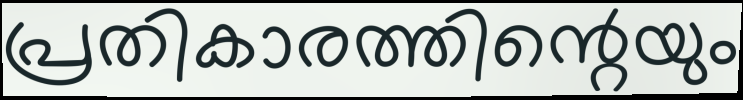
പ്രതികാരത്തിന്റെയും